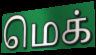
மெக்